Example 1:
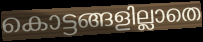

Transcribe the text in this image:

കൊട്ടങ്ങളില്ലാതെ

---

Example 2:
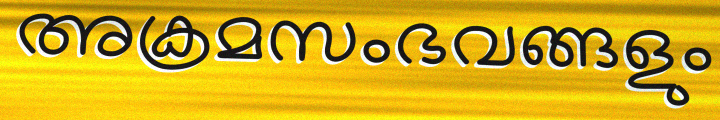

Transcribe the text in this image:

അക്രമസംഭവങ്ങളും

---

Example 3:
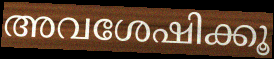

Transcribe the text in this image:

അവശേഷിക്കൂ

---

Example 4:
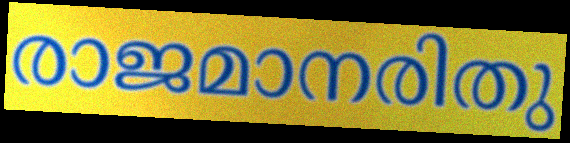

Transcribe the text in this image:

രാജമാനരിതു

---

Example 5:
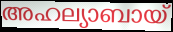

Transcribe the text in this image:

അഹല്യാബായ്